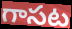
గాసట